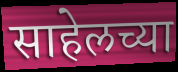
साहेलच्या